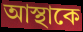
আস্থাকে